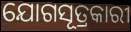
ଯୋଗସୂତ୍ରକାରୀ